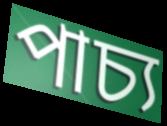
পাচ্য